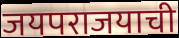
जयपराजयाची